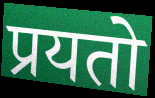
प्रयतो